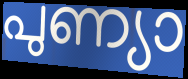
പുണ്യാ